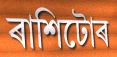
ৰাশিটোৰ